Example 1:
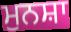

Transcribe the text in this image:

ਮੁਨਸ਼ਾ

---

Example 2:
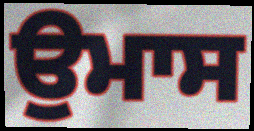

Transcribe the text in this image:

ਉਮਾਸ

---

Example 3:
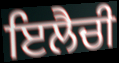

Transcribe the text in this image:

ਇਲੈਚੀ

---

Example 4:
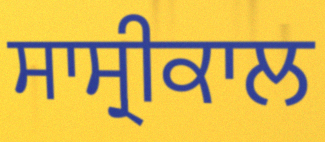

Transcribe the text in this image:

ਸਾਸ੍ਰੀਕਾਲ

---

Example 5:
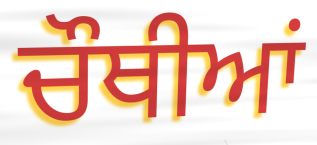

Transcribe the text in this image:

ਚੌਥੀਆਂ